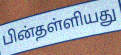
பின்தள்ளியது